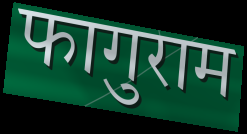
फागुराम